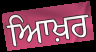
ਆਿਖ਼ਰ